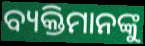
ବ୍ୟକ୍ତିମାନଙ୍କୁ